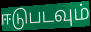
ஈடுபடவும்